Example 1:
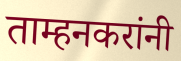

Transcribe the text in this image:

ताम्हनकरांनी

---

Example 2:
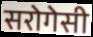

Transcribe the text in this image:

सरोगेसी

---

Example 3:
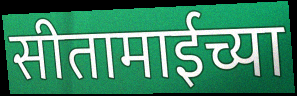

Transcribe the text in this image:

सीतामाईच्या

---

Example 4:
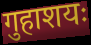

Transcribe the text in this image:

गुहाशयः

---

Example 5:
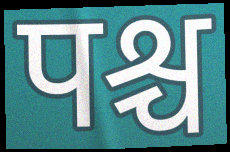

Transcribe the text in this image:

पश्च